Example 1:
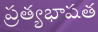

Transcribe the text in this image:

ప్రత్యభాషత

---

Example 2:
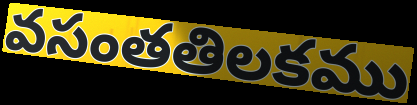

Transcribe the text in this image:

వసంతతిలకము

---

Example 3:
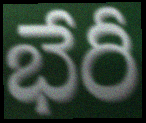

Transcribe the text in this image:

భేరీ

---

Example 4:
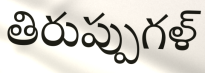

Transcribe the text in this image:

తిరుప్పుగళ్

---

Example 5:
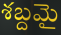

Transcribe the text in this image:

శబ్దమై